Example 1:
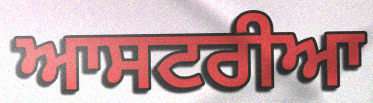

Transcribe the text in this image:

ਆਸਟਰੀਆ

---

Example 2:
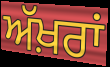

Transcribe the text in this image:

ਅੱਖ਼ਰਾਂ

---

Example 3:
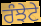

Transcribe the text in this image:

ਰੰਝੇਟੇ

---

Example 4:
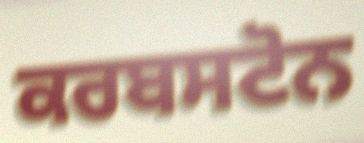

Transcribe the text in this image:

ਕਰਬਸਟੋਨ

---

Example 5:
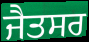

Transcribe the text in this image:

ਜੈਤਸਰ